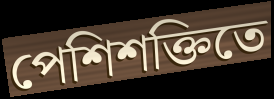
পেশিশক্তিতে